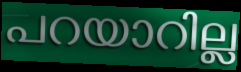
പറയാറില്ല